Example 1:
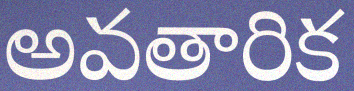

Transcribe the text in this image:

అవతారిక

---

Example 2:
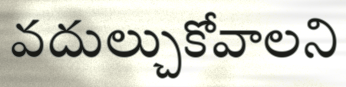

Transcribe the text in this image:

వదుల్చుకోవాలని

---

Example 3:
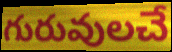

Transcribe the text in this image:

గురువులచే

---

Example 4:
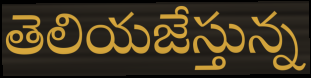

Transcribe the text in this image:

తెలియజేస్తున్న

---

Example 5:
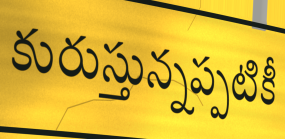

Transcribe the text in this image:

కురుస్తున్నప్పటికీ